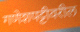
गणेशपट्टीवरील